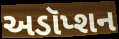
અડૉપ્શન